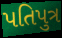
પતિપુત્ર